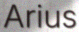
Arius